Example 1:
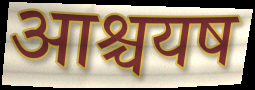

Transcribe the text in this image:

आश्चयष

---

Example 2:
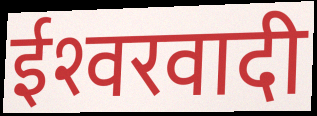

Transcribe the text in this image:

ईश्वरवादी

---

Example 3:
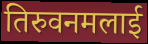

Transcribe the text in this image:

तिरुवनमलाई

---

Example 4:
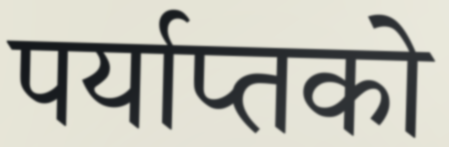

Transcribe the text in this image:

पर्याप्तको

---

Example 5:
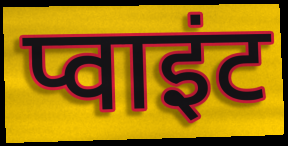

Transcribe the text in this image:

प्वाइंट